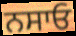
ਨਸਾਓ